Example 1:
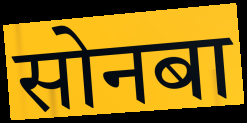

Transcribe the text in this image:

सोनबा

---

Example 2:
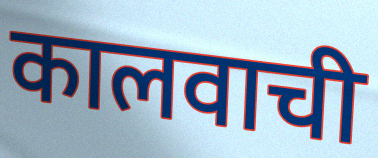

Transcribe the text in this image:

कालवाची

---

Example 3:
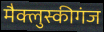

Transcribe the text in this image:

मैक्लुस्कीगंज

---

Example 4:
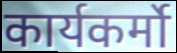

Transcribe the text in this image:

कार्यकर्मो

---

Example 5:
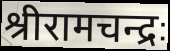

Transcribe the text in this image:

श्रीरामचन्द्रः